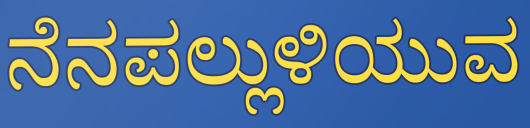
ನೆನಪಲ್ಲುಳಿಯುವ